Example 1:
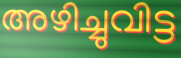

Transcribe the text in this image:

അഴിച്ചുവിട്ട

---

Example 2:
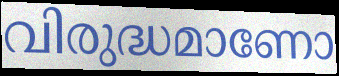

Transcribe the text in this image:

വിരുദ്ധമാണോ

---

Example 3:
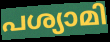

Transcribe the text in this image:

പശ്യാമി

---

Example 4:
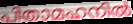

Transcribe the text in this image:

പിതാമഹനിൽ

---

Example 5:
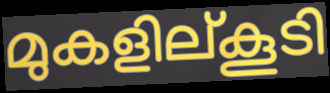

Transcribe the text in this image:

മുകളില്കൂടി